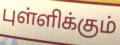
புள்ளிக்கும்